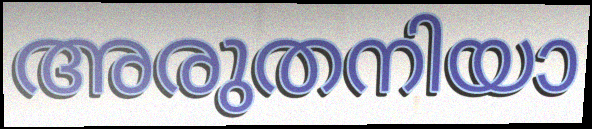
അരുതനിയാ